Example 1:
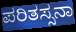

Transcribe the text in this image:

ಪರಿತಸ್ಸನಾ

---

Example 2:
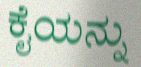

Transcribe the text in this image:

ಕೈಯನ್ನು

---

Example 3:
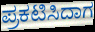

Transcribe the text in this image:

ಪ್ರಕಟಿಸಿದಾಗ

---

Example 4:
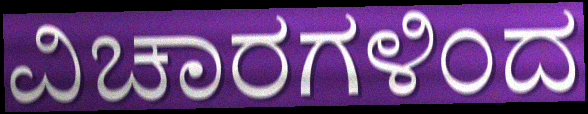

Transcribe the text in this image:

ವಿಚಾರಗಳಿಂದ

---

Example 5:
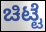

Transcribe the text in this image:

ಚಿಟ್ಟೆ